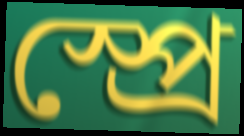
স্প্রে